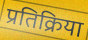
प्रतिक्रिया